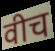
वीच